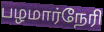
பழமார்நேரி